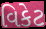
વિકેટ